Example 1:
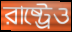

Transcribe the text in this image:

রাষ্ট্রেও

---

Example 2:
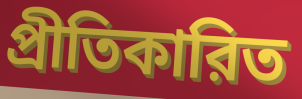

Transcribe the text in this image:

প্রীতিকারিত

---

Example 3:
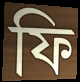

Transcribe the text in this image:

ফি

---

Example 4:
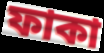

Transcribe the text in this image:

ফাকা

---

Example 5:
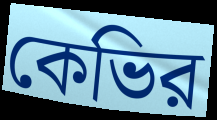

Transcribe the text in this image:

কেভির